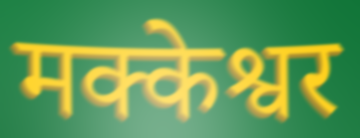
मक्केश्वर